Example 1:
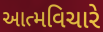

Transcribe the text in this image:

આત્મવિચારે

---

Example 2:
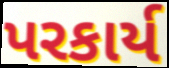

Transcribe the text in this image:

પરકાર્ય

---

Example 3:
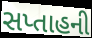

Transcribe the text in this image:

સપ્તાહની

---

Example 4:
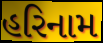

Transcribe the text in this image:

હરિનામ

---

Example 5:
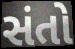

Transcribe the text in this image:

સંતો